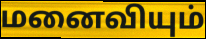
மனைவியும்